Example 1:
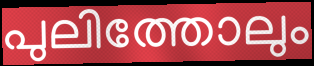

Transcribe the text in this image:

പുലിത്തോലും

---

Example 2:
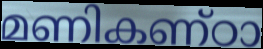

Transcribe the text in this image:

മണികണ്ഠാ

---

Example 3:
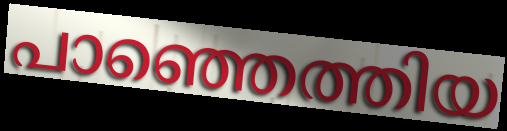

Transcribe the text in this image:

പാഞ്ഞെത്തിയ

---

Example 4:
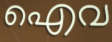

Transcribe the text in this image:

ഐവ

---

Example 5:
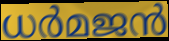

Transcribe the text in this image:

ധർമജൻ